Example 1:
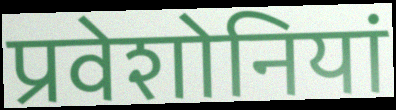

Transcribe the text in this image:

प्रवेशोनियां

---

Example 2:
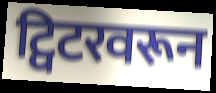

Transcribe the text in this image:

ट्विटरवरून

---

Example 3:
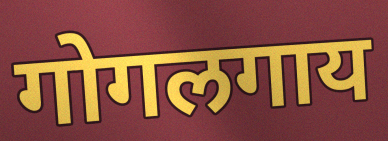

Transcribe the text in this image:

गोगलगाय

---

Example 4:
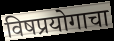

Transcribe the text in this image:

विषप्रयोगाचा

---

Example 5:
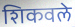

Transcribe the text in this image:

शिकवले